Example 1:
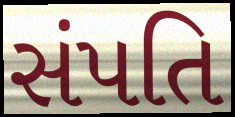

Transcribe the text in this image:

સંપતિ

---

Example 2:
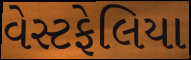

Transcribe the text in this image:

વેસ્ટફેલિયા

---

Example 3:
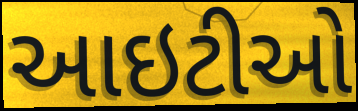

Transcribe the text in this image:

આઇટીઓ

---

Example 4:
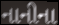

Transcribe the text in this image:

નાનીના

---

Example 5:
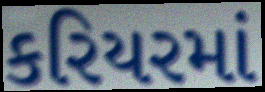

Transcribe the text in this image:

કરિયરમાં